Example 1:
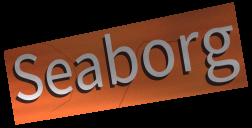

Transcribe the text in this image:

Seaborg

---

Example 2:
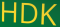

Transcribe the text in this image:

HDK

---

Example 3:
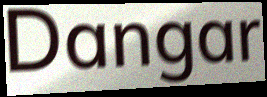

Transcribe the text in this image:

Dangar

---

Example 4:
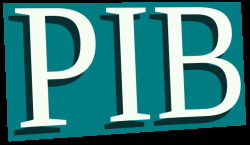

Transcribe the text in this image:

PIB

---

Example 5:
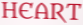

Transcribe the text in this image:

HEART